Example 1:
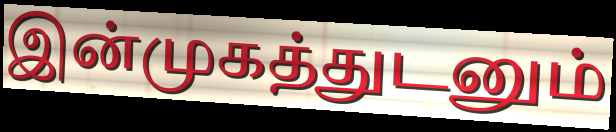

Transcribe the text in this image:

இன்முகத்துடனும்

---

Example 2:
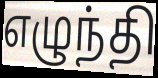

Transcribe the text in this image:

எழுந்தி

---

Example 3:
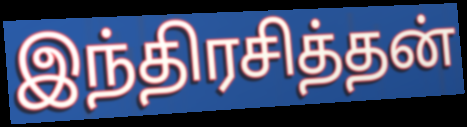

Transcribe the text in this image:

இந்திரசித்தன்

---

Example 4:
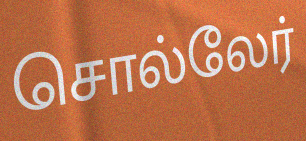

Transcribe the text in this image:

சொல்லேர்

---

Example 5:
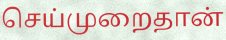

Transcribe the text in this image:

செய்முறைதான்